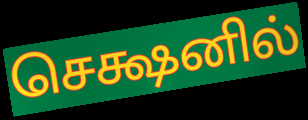
செக்ஷனில்